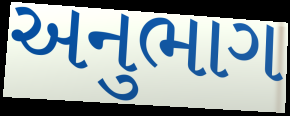
અનુભાગ